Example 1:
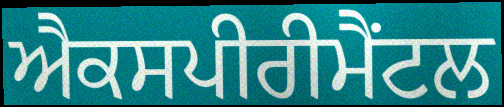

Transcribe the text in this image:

ਐਕਸਪੀਰੀਮੈਂਟਲ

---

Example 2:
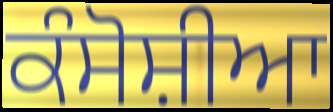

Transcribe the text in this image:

ਕੰਸੋਸ਼ੀਆ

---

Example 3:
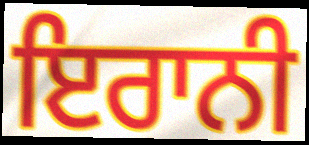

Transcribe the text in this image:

ਇਰਾਨੀ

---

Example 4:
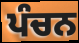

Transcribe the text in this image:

ਪੰਚਨ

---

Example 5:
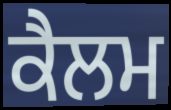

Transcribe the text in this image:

ਕੈਲਮ